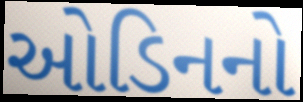
ઓડિનનો